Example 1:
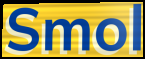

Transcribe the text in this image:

Smol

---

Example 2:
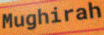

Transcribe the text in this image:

Mughirah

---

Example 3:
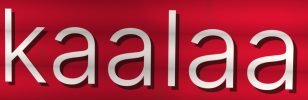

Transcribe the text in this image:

kaalaa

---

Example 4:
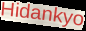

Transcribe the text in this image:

Hidankyo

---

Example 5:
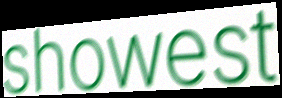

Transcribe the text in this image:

showest